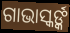
ଗାଭାସ୍କର୍ଙ୍କ